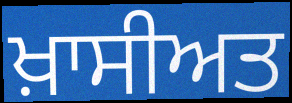
ਖ਼ਾਸੀਅਤ